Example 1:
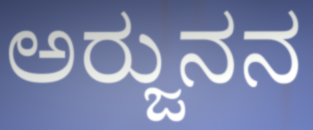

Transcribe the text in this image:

ಅರ್‍ಜುನನ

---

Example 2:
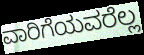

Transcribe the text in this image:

ವಾರಿಗೆಯವರೆಲ್ಲ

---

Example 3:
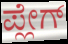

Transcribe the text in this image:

ಪ್ಲೇಗ್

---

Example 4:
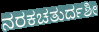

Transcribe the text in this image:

ನರಕಚತುರ್ದಶೀ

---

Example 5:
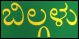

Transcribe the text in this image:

ಬಿಲ್ಗಳು